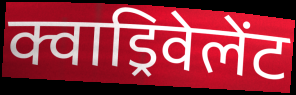
क्वाड्रिवेलेंट